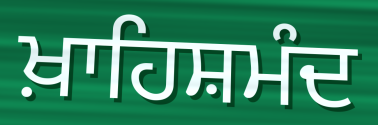
ਖ਼ਾਹਿਸ਼ਮੰਦ